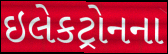
ઇલેકટ્રોનના